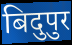
बिदुपुर